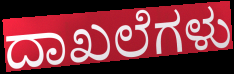
ದಾಖಲೆಗಳು